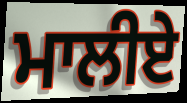
ਮਾਲੀਏ